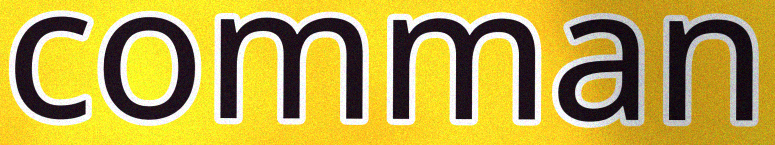
comman